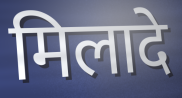
मिलादे